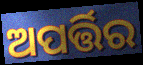
ଅପର୍ତ୍ତିର